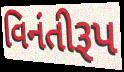
વિનંતીરૂપ